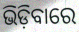
ଭିଡ଼ିବାରେ